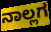
ನಾಲ್ಲಗ